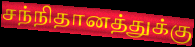
சந்நிதானத்துக்கு